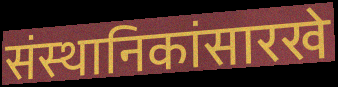
संस्थानिकांसारखे